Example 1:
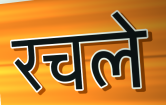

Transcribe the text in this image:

रचले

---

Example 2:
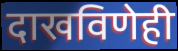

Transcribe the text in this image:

दाखविणेही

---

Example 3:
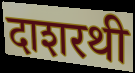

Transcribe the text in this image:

दाशरथी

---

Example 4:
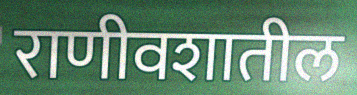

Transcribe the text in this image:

राणीवशातील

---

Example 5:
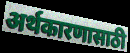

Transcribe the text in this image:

अर्थकारणासाठी